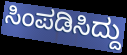
ಸಿಂಪಡಿಸಿದ್ದು